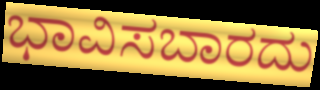
ಭಾವಿಸಬಾರದು